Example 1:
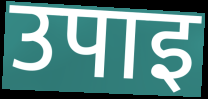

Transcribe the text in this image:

उपाइ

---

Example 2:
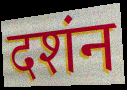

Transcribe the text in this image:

दशंन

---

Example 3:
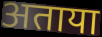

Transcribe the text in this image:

अताया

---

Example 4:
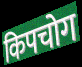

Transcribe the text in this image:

किपचोग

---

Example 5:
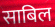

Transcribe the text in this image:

साबिल